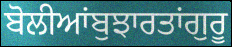
ਬੋਲੀਆਂਬੁਝਾਰਤਾਂਗੁਰੂ